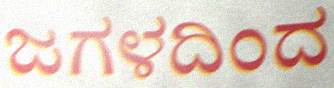
ಜಗಳದಿಂದ